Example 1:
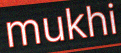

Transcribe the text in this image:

mukhi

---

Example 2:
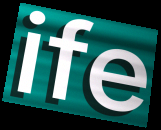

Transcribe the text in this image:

ife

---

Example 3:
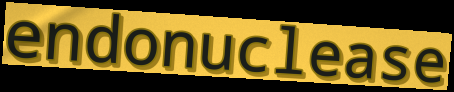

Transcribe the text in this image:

endonuclease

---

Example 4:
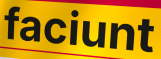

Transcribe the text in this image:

faciunt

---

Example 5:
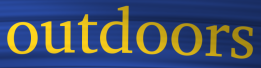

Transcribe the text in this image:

outdoors